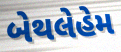
બેથલેહેમ